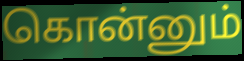
கொன்னும்